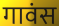
गावंस